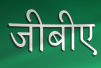
जीबीए